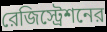
রেজিস্ট্রেশনের